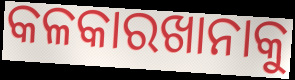
କଳକାରଖାନାକୁ